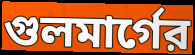
গুলমার্গের